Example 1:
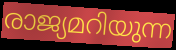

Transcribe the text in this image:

രാജ്യമറിയുന്ന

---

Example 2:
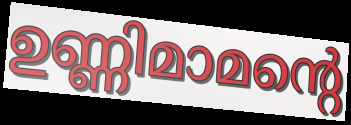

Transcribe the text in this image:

ഉണ്ണിമാമന്റെ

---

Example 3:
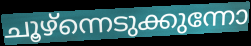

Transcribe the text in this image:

ചൂഴ്ന്നെടുക്കുന്നോ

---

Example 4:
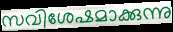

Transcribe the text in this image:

സവിശേഷമാക്കുന്നു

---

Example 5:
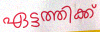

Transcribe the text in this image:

ഏട്ടത്തിക്ക്